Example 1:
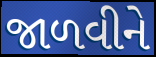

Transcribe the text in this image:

જાળવીને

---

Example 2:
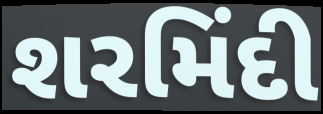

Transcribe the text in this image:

શરમિંદી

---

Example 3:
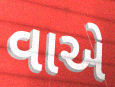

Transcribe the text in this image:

વાએ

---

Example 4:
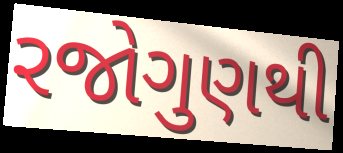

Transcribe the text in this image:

રજોગુણથી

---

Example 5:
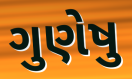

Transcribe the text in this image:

ગુણેષુ